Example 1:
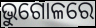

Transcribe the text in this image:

ଭୁଗୋଳରେ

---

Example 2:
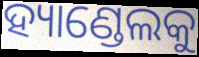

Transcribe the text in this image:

ହ୍ୟାଣ୍ଡେଲକୁ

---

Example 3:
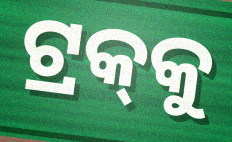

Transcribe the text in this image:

ଟ୍ରକ୍‍କୁ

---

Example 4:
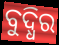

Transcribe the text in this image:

ବୁଦ୍ଧିର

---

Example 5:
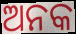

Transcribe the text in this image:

ଅନକ